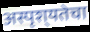
अस्पृश्यतेचा